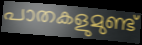
പാതകളുമുണ്ട്